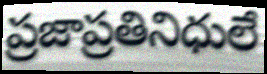
ప్రజాప్రతినిధులే